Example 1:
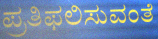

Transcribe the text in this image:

ಪ್ರತಿಫಲಿಸುವಂತೆ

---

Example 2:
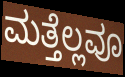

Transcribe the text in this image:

ಮತ್ತೆಲ್ಲವೂ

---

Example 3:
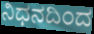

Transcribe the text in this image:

ನಿಧನದಿಂದ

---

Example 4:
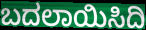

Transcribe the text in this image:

ಬದಲಾಯಿಸಿದಿ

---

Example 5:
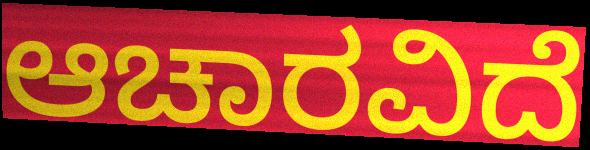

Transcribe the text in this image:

ಆಚಾರವಿದೆ